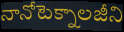
నానోటెక్నాలజీని